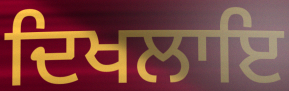
ਦਿਖਲਾਇ